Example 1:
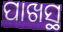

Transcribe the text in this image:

ପାଖସ୍ଥ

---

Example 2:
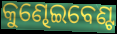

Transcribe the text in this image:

କୁଣ୍ଢେଇବେଣ୍ଟ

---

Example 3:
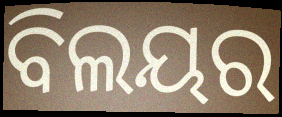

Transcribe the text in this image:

ବିଲୟର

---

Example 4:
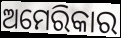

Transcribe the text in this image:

ଅମେରିକାର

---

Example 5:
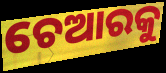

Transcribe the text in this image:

ଚେଆରକୁ